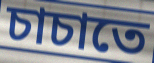
চাচাতে